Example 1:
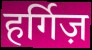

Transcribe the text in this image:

हर्गिज़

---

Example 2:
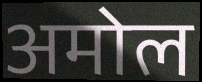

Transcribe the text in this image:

अमोल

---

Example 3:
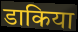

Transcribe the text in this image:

डाकिया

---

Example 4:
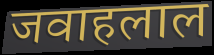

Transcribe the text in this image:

जवाहलाल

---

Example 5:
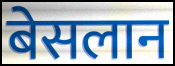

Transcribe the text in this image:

बेसलान